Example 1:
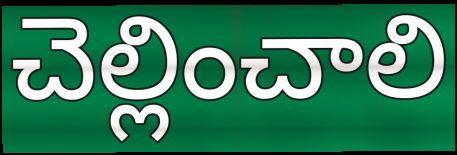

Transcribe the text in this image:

చెల్లించాలి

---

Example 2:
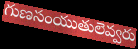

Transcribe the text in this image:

గుణసంయుతులెవ్వరు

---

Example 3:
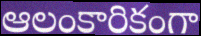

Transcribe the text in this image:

ఆలంకారికంగా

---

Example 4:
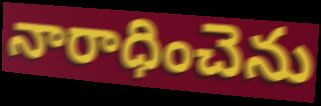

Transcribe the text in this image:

నారాధించెను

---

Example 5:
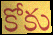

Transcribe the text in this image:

కోకు